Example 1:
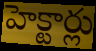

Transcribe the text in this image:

హెక్టార్లు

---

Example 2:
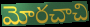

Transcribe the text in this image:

మోరచాచి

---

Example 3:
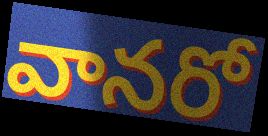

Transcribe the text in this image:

వానరో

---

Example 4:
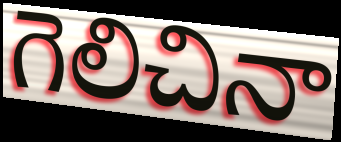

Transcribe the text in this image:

గెలిచినా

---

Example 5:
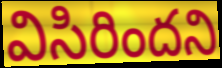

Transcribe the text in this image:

విసిరిందని